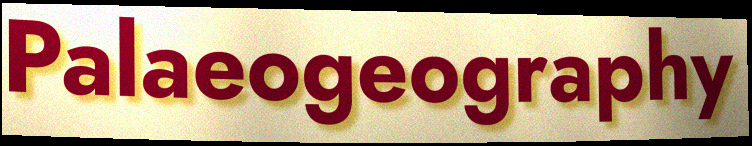
Palaeogeography